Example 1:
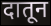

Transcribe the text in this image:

दातून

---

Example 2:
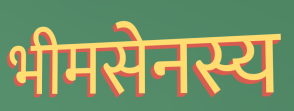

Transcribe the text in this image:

भीमसेनस्य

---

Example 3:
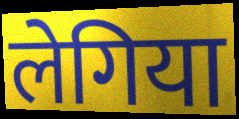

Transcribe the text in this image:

लेगिया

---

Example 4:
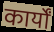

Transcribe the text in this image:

कार्यों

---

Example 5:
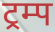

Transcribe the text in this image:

ट्रम्प